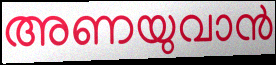
അണയുവാൻ